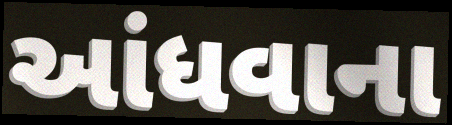
આંધવાના